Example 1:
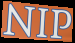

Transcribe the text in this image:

NIP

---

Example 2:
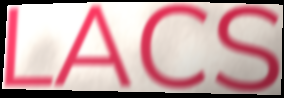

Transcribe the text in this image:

LACS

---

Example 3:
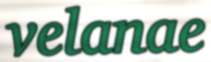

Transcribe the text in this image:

velanae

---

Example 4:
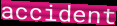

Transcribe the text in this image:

accident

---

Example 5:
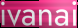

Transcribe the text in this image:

ivanai